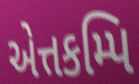
એત્તકમ્પિ